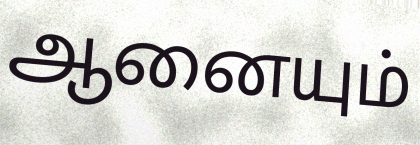
ஆனையும்